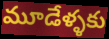
మూడేళ్ళకు